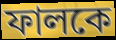
ফালকে